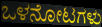
ಒಳನೋಟಗಳು